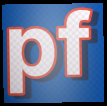
pf